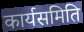
कार्यसमिति